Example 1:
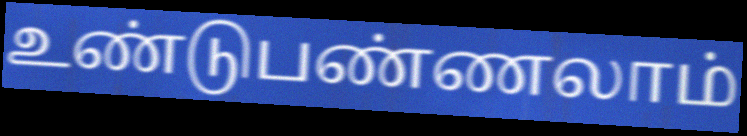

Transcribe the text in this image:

உண்டுபண்ணலாம்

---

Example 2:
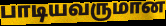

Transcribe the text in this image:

பாடியவருமான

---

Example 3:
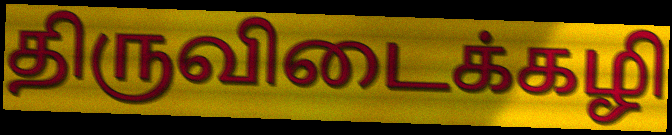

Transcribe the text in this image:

திருவிடைக்கழி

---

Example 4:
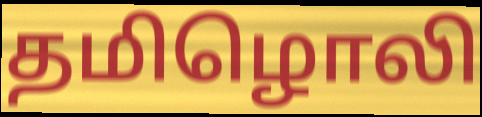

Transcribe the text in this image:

தமிழொலி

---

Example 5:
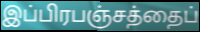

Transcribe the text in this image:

இப்பிரபஞ்சத்தைப்